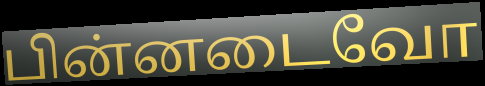
பின்னடைவோ